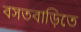
বসতবাড়িতে